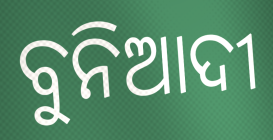
ବୁନିଆଦୀ